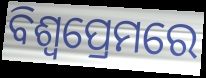
ବିଶ୍ୱପ୍ରେମରେ